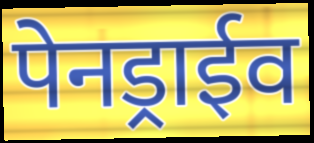
पेनड्राईव